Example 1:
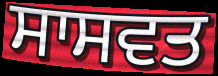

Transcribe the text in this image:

ਸਾਸਵਤ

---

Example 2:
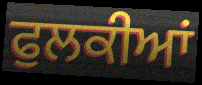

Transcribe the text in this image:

ਫੁਲਕੀਆਂ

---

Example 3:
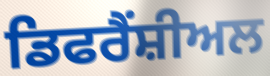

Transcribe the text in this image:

ਡਿਫਰੈਂਸ਼ੀਅਲ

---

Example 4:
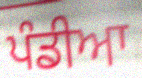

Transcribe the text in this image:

ਪੰਡੀਆ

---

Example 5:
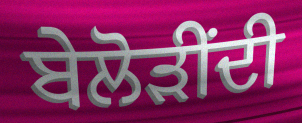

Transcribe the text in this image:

ਬੇਲੋੜੀਂਦੀ